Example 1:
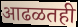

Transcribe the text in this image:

आढळतही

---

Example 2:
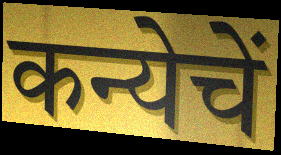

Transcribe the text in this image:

कन्येचें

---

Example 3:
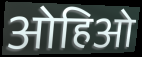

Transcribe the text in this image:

ओहिओ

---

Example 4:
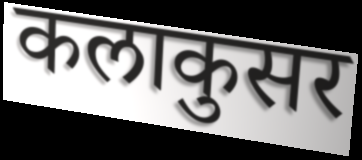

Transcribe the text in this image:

कलाकुसर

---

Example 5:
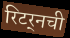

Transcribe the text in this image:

रिटर्नची